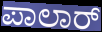
ಪಾಲಾರ್